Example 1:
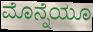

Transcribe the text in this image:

ಮೊನ್ನೆಯೂ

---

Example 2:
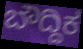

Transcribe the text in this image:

ಬೌದ್ದಿಕ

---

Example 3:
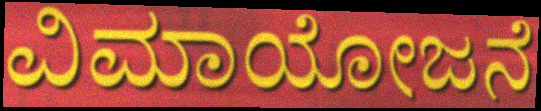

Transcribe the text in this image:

ವಿಮಾಯೋಜನೆ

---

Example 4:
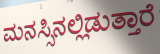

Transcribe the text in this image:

ಮನಸ್ಸಿನಲ್ಲಿಡುತ್ತಾರೆ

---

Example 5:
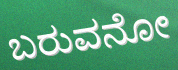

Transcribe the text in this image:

ಬರುವನೋ